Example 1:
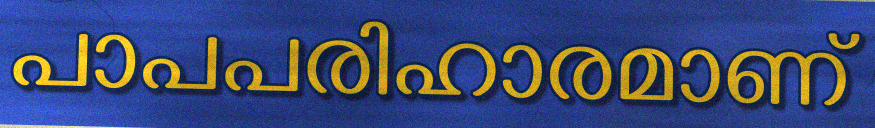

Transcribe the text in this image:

പാപപരിഹാരമാണ്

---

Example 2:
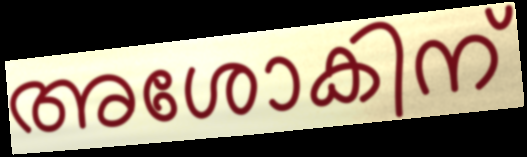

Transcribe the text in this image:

അശോകിന്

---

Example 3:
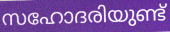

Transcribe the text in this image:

സഹോദരിയുണ്ട്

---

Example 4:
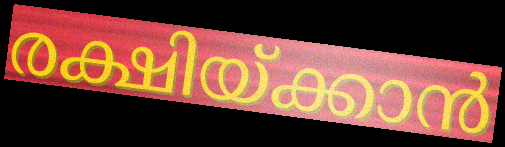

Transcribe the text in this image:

രക്ഷിയ്ക്കാൻ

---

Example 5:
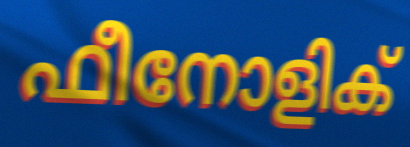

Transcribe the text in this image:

ഫീനോളിക്